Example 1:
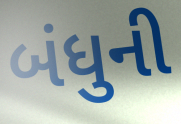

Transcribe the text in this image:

બંધુની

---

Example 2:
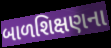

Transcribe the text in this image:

બાળશિક્ષણના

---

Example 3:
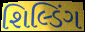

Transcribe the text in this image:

શિલ્ડિંગ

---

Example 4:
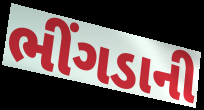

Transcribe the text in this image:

ભીંગડાની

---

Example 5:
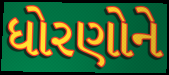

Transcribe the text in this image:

ધોરણોને